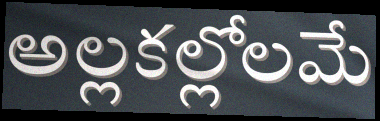
అల్లకల్లోలమే